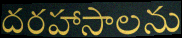
దరహాసాలను